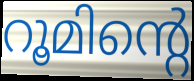
റൂമിന്റെ